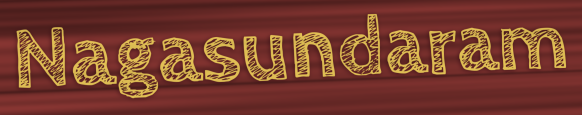
Nagasundaram